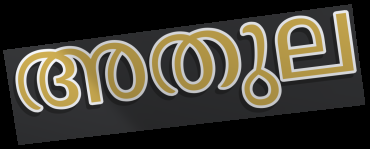
അതുല